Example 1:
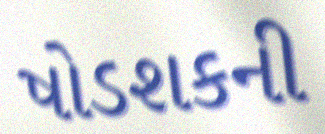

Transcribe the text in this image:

ષોડશકની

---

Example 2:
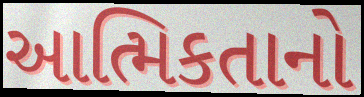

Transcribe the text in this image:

આત્મિકતાનો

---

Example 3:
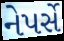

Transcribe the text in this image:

નેપર્સે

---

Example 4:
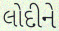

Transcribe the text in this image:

લોદીને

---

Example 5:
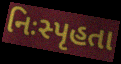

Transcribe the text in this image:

નિઃસ્પૃહતા